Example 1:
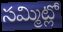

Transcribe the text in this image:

సమ్మిట్లో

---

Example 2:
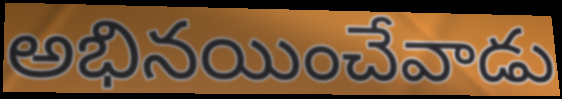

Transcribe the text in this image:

అభినయించేవాడు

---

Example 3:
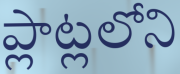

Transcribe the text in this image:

ప్లాట్లలోని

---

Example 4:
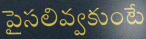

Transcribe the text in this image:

పైసలివ్వకుంటే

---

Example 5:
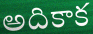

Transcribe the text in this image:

అదికాక